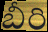
బీరి